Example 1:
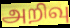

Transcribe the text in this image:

அறிவு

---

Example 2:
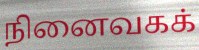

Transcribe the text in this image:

நினைவகக்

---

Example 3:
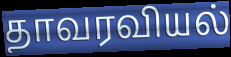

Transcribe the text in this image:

தாவரவியல்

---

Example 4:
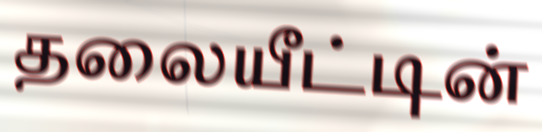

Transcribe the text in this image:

தலையீட்டின்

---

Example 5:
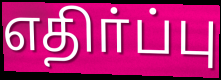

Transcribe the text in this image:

எதிர்ப்பு